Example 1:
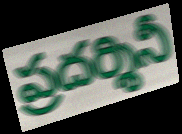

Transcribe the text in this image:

ప్రదర్శినీ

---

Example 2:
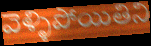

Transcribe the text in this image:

వెళ్ళిపోయితిని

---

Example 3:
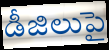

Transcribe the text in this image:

డీజిలుపై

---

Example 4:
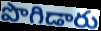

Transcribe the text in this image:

పొగిడారు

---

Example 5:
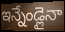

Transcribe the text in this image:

ఇన్నేండ్లైనా